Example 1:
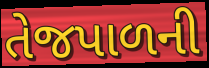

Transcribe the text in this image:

તેજપાળની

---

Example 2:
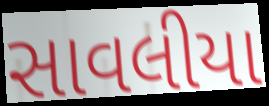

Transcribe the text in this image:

સાવલીયા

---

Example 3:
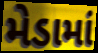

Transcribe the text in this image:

મેડામાં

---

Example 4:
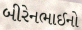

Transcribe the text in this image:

બીરેનભાઈનો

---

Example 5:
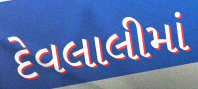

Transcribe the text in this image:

દેવલાલીમાં